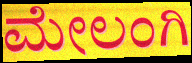
ಮೇಲಂಗಿ